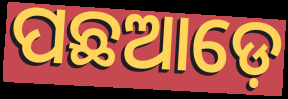
ପଛଆଡ଼େ